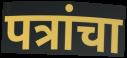
पत्रांचा